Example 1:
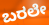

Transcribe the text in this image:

ಬರಲೇ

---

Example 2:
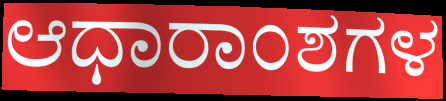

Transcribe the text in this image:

ಆಧಾರಾಂಶಗಳ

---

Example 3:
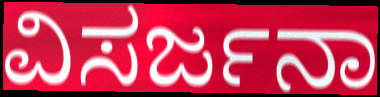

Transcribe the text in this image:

ವಿಸರ್ಜನಾ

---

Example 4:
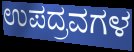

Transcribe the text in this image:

ಉಪದ್ರವಗಳ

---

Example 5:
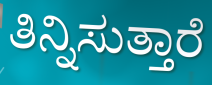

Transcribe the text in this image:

ತಿನ್ನಿಸುತ್ತಾರೆ